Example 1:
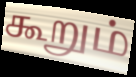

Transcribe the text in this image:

கூறும்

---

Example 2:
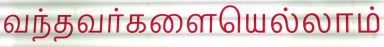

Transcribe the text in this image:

வந்தவர்களையெல்லாம்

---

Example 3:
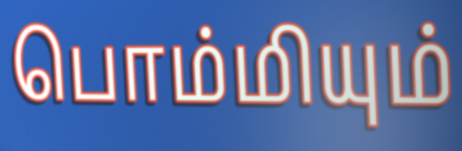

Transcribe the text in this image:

பொம்மியும்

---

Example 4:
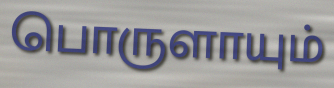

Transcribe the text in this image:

பொருளாயும்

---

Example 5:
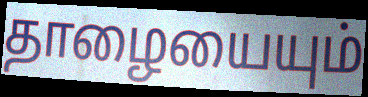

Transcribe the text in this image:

தாழையையும்